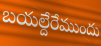
బయల్దేరేముందు